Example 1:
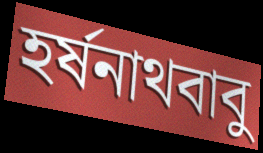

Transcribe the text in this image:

হর্ষনাথবাবু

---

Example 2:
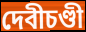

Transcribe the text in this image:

দেবীচণ্ডী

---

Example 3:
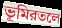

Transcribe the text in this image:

ভূমিরতলে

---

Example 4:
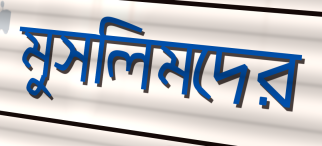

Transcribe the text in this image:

মুসলিমদের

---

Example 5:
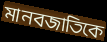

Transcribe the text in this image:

মানবজাতিকে